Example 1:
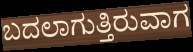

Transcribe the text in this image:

ಬದಲಾಗುತ್ತಿರುವಾಗ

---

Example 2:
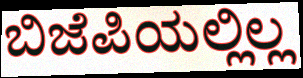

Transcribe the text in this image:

ಬಿಜೆಪಿಯಲ್ಲಿಲ್ಲ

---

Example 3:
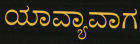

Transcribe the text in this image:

ಯಾವ್ಯಾವಾಗ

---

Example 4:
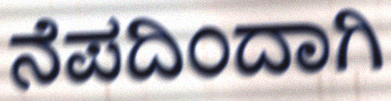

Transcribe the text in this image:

ನೆಪದಿಂದಾಗಿ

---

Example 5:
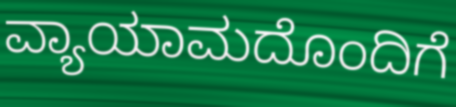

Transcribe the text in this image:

ವ್ಯಾಯಾಮದೊಂದಿಗೆ